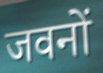
जवनों